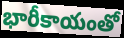
భారీకాయంతో